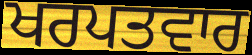
ਖਰਪਤਵਾਰ